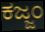
ಕಜ್ಜಂ